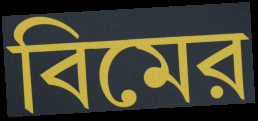
বিমের